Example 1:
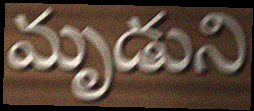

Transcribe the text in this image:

మృడుని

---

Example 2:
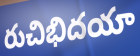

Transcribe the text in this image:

రుచిభిదయా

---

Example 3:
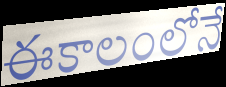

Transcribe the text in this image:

ఈకాలంలోనే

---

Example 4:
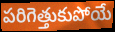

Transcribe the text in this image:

పరిగెత్తుకుపోయే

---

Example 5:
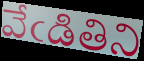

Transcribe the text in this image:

వేఁడితిని